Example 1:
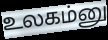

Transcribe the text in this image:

உலகம்னு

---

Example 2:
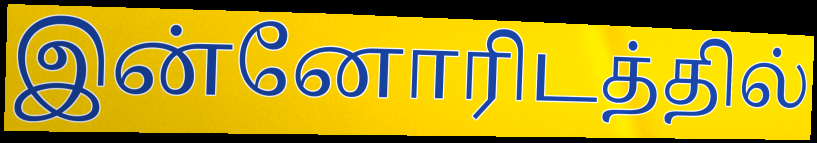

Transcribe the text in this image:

இன்னோரிடத்தில்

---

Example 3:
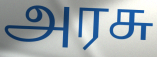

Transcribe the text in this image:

அரசு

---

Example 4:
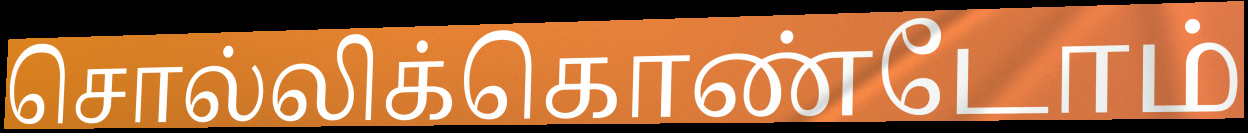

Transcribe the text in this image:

சொல்லிக்கொண்டோம்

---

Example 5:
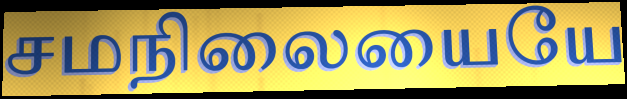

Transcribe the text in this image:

சமநிலையையே